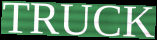
TRUCK